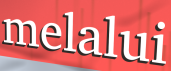
melalui